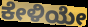
ಕೇಳಿಯೇ